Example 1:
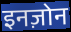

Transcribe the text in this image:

इनज़ोन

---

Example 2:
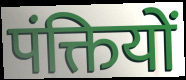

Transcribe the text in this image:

पंक्तियों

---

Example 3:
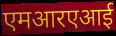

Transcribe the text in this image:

एमआरएआई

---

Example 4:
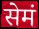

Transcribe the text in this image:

सेमं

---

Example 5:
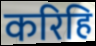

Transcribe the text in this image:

करिहि